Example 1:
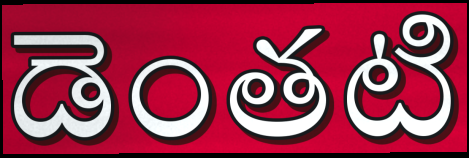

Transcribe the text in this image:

డెంతటి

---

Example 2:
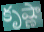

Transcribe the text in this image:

కృష్ణా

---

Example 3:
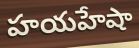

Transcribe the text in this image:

హయహేషా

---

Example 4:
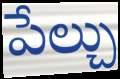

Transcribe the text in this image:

పేల్చు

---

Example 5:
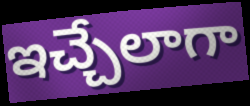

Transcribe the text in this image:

ఇచ్చేలాగా